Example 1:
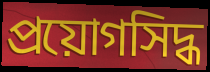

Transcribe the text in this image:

প্রয়োগসিদ্ধ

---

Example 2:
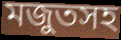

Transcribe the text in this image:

মজুতসহ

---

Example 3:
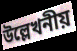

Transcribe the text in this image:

উল্লেখনীয়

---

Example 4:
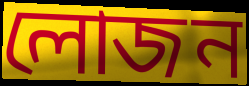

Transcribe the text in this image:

লোজন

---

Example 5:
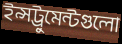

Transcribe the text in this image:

ইন্সট্রুমেন্টগুলো